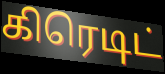
கிரெடிட்